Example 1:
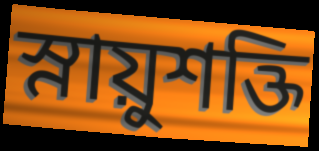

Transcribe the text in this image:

স্নায়ুশক্তি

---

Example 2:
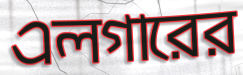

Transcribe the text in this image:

এলগারের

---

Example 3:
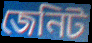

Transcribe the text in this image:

জেনিট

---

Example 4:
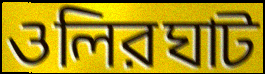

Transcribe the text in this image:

ওলিরঘাট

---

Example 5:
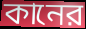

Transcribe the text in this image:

কানের